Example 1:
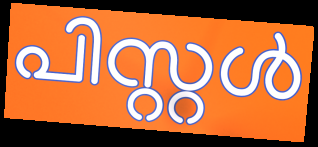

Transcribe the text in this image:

പിസ്റ്റൾ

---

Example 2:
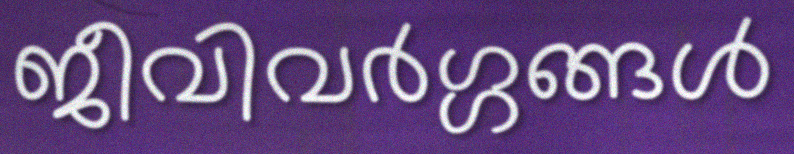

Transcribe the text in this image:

ജീവിവർഗ്ഗങ്ങൾ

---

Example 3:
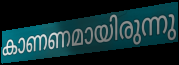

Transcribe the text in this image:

കാണണമായിരുന്നു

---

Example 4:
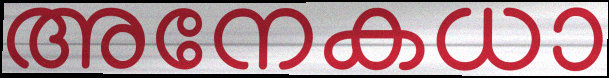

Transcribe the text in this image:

അനേകധാ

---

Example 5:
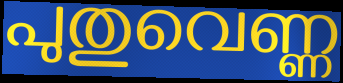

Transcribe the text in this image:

പുതുവെണ്ണ